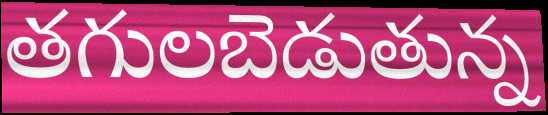
తగులబెడుతున్న